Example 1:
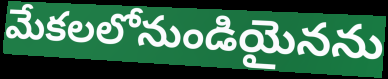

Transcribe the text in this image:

మేకలలోనుండియైనను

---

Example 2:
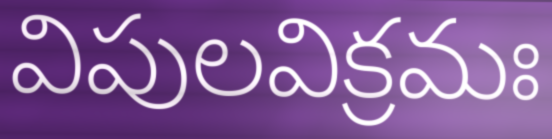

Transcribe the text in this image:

విపులవిక్రమః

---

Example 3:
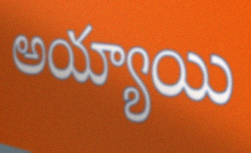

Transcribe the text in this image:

అయ్యాయి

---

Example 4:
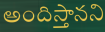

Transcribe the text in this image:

అందిస్తానని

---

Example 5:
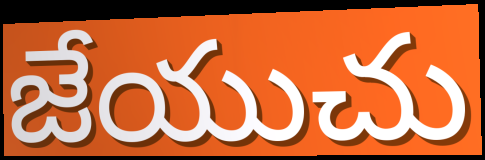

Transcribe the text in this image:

జేయుచు